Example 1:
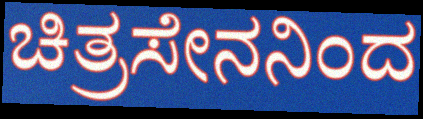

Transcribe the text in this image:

ಚಿತ್ರಸೇನನಿಂದ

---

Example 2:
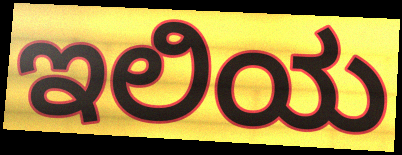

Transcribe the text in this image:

ಇಲಿಯ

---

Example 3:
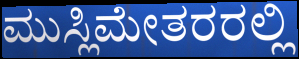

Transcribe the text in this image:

ಮುಸ್ಲಿಮೇತರರಲ್ಲಿ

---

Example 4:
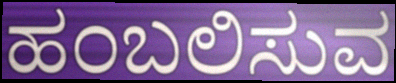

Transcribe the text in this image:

ಹಂಬಲಿಸುವ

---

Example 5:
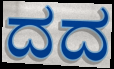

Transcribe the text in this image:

ದದ